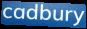
cadbury